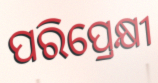
ପରିପ୍ରେକ୍ଷୀ